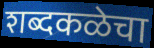
शब्दकळेचा